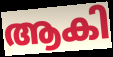
ആകി